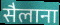
सैलाना